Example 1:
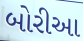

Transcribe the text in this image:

બોરીઆ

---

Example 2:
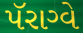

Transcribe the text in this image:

પૅરાગ્વે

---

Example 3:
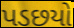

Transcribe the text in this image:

પડછયો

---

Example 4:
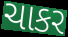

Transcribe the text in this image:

ચાકર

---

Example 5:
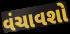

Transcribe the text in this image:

વંચાવશો